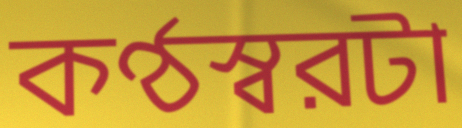
কণ্ঠস্বরটা